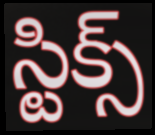
స్టిక్స్